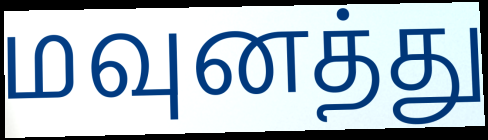
மவுனத்து